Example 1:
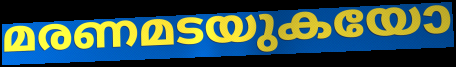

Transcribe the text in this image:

മരണമടയുകയോ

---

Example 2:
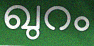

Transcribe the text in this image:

ഖുറം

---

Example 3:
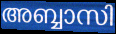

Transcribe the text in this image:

അബ്ബാസി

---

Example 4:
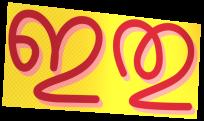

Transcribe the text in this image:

ഇതു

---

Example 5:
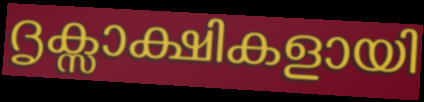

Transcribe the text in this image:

ദൃക്സാക്ഷികളായി